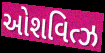
ઓશવિત્ઝ